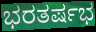
ಭರತರ್ಷಭ